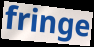
fringe